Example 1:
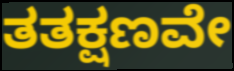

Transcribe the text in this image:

ತತಕ್ಷಣವೇ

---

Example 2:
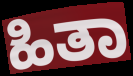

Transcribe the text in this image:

ಹಿತಾ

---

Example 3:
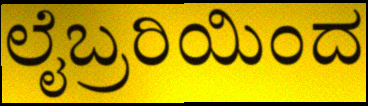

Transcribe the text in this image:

ಲೈಬ್ರರಿಯಿಂದ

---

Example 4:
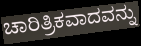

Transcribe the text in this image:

ಚಾರಿತ್ರಿಕವಾದವನ್ನು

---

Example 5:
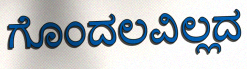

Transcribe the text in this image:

ಗೊಂದಲವಿಲ್ಲದ